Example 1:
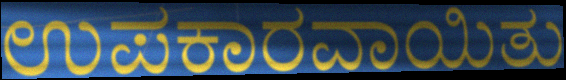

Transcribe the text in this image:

ಉಪಕಾರವಾಯಿತು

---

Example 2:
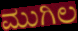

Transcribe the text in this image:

ಮುಗಿಲ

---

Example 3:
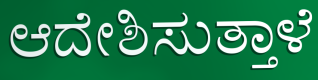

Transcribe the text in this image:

ಆದೇಶಿಸುತ್ತಾಳೆ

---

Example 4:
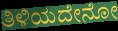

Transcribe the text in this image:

ತಿಳಿಯದೇನೋ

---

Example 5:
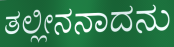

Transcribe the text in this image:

ತಲ್ಲೀನನಾದನು